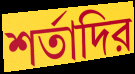
শর্তাদির